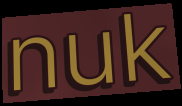
nuk